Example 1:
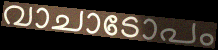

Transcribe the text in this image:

വാചാടോപം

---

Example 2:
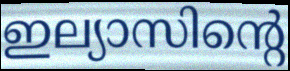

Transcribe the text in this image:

ഇല്യാസിന്റെ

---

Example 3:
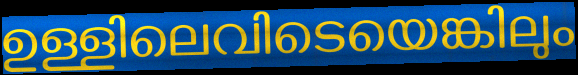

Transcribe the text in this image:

ഉള്ളിലെവിടെയെങ്കിലും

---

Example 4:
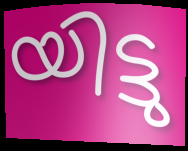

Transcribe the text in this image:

യിട്ടു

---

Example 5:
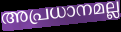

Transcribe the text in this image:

അപ്രധാനമല്ല